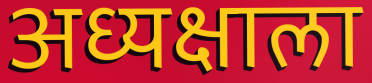
अध्यक्षाला